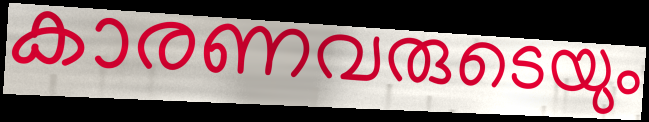
കാരണവരുടെയും